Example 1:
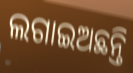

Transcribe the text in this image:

ଲଗାଇଅଛନ୍ତି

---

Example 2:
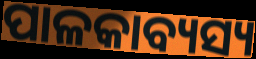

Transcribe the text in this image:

ପାଳକାବ୍ୟସ୍ୟ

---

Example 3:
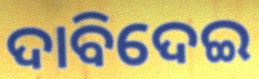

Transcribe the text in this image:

ଦାବିଦେଇ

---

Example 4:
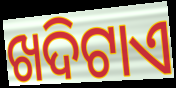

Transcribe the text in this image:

ଖଦିଟାଏ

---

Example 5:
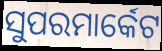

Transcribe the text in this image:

ସୁପରମାର୍କେଟ